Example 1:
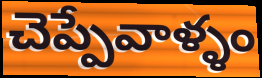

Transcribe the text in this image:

చెప్పేవాళ్ళం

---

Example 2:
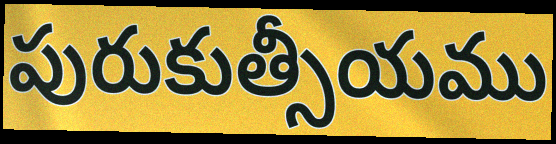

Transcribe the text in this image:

పురుకుత్సీయము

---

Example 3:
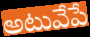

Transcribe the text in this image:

అటువేపే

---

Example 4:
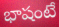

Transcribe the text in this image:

భాషంటే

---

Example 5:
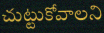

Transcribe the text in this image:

చుట్టుకోవాలని